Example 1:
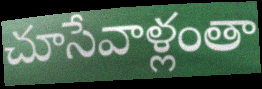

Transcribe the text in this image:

చూసేవాళ్లంతా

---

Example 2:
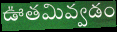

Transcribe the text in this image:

ఊతమివ్వడం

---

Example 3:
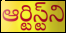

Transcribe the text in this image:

ఆర్టిస్ట్‌ని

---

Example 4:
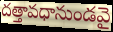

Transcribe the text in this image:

దత్తావధానుండవై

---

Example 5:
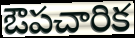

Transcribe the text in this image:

ఔపచారిక